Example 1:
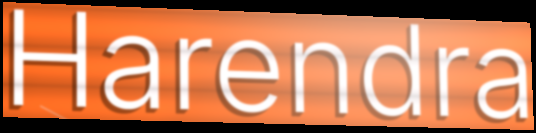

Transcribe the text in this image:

Harendra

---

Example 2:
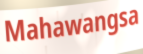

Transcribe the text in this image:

Mahawangsa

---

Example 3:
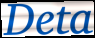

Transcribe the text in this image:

Deta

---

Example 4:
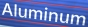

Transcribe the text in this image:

Aluminum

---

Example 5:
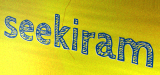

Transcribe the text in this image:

seekiram